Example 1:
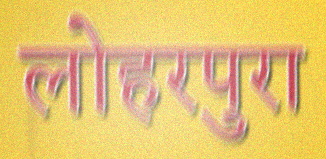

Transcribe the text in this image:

लोहरपुरा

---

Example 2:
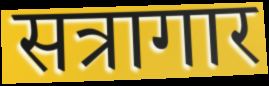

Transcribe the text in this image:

सत्रागार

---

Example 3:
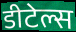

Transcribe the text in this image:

डीटेल्‍स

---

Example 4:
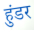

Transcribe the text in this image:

हुंडर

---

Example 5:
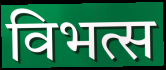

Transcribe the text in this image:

विभत्स